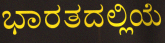
ಭಾರತದಲ್ಲಿಯೆ